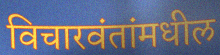
विचारवंतांमधील